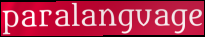
paralanguage